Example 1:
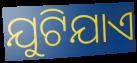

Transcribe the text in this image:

ଯୁଟିଯାଏ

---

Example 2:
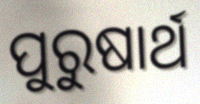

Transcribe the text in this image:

ପୁରୁଷାର୍ଥ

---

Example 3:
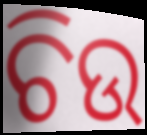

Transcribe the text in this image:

ଚିଉ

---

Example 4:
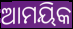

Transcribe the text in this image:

ଆମୟିକ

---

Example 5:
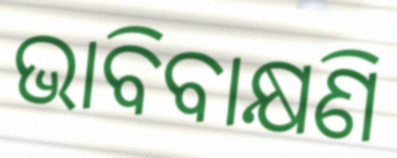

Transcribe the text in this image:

ଭାବିବାକ୍ଷଣି